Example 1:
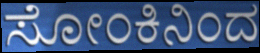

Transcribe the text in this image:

ಸೋಂಕಿನಿಂದ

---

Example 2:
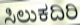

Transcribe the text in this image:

ಸಿಲುಕದಿರಿ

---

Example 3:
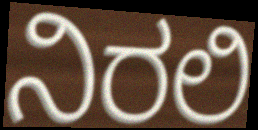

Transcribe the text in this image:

ನಿರಲಿ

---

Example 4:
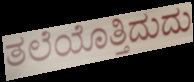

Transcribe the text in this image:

ತಲೆಯೊತ್ತಿದುದು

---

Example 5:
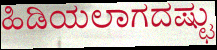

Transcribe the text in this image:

ಹಿಡಿಯಲಾಗದಷ್ಟು